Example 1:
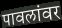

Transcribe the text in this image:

पावलांवर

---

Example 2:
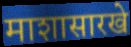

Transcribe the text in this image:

माशासारखे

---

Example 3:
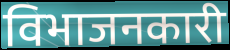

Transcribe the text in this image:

विभाजनकारी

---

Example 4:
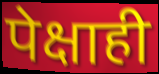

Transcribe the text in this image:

पेक्षाही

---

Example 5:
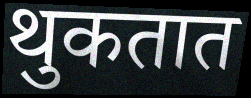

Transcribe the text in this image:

थुकतात